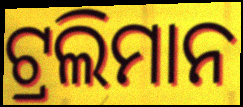
ଟ୍ରଲିମାନ